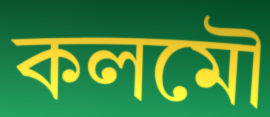
কলমৌ